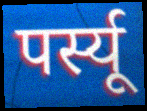
पर्स्यू